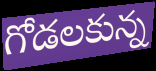
గోడలకున్న